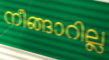
നീങ്ങാറില്ല